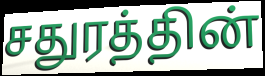
சதுரத்தின்